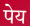
पेय